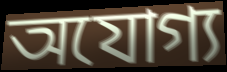
অযোগ্য